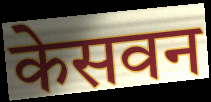
केसवन